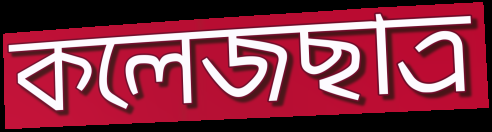
কলেজছাত্র